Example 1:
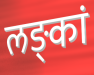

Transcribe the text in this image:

लङ्कां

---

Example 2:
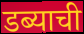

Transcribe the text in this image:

डब्याची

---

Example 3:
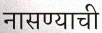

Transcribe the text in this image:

नासण्याची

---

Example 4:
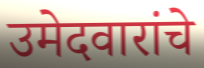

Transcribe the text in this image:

उमेदवारांचे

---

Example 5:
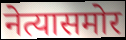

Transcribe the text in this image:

नेत्यासमोर